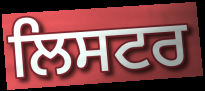
ਲਿਸਟਰ